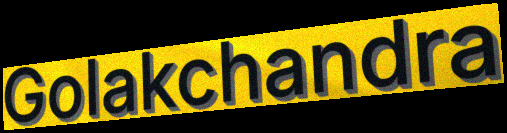
Golakchandra